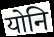
योनि